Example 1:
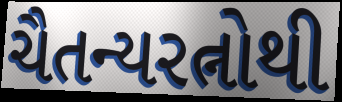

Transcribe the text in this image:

ચૈતન્યરત્નોથી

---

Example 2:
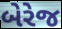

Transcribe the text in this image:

બેરેજ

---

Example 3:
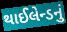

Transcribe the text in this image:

થાઈલેન્ડનું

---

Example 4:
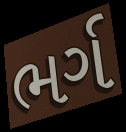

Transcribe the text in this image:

ભર્ગ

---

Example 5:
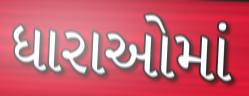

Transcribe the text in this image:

ધારાઓમાં